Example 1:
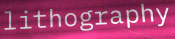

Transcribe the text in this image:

lithography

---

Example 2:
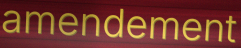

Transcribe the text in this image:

amendement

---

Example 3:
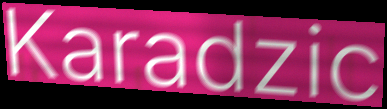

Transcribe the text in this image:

Karadzic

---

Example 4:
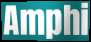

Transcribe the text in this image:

Amphi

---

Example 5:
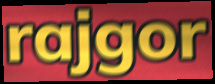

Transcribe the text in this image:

rajgor